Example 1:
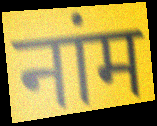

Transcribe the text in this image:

नांम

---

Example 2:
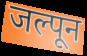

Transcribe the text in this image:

जल्पून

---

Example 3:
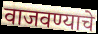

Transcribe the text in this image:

वाजवण्याचे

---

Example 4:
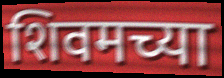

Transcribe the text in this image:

शिवमच्या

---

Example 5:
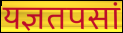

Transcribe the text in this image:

यज्ञतपसां